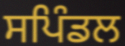
ਸਪਿੰਡਲ